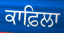
ਕਾਫ਼ਿਲਾ